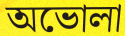
অভোলা